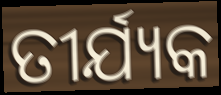
ତୀର୍ଯ୍ୟକ